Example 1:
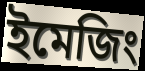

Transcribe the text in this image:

ইমেজিং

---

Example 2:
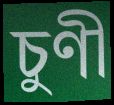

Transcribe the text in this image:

চুণী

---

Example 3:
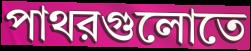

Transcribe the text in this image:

পাথরগুলোতে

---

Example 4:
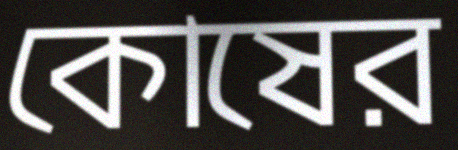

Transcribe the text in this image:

কোষের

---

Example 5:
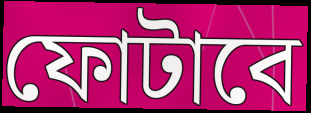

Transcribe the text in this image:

ফোটাবে